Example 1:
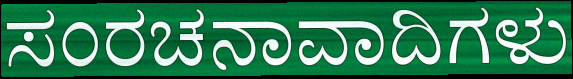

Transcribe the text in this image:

ಸಂರಚನಾವಾದಿಗಳು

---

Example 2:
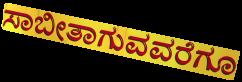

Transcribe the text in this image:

ಸಾಬೀತಾಗುವವರೆಗೂ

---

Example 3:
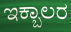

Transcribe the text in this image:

ಇಕ್ಬಾಲರ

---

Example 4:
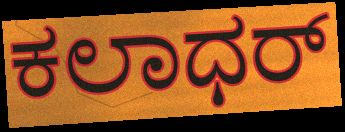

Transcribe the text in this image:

ಕಲಾಧರ್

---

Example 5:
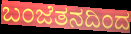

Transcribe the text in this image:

ಬಂಜೆತನದಿಂದ